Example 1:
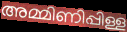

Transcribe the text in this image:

അമ്മിണിപ്പിള്ള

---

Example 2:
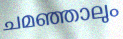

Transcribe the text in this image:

ചമഞ്ഞാലും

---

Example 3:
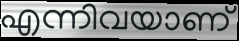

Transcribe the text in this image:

എന്നിവയാണ്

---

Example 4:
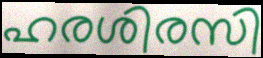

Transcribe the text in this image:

ഹരശിരസി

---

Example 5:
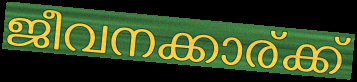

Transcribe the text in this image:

ജീവനക്കാര്ക്ക്